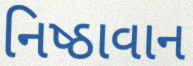
નિષ્ઠાવાન